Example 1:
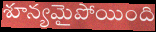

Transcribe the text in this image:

శూన్యమైపోయింది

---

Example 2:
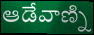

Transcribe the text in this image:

ఆడేవాణ్ని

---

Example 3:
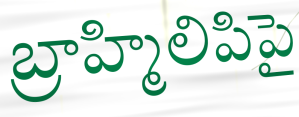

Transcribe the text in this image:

బ్రాహ్మిలిపిపై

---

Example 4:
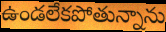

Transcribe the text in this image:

ఉండలేకపోతున్నాను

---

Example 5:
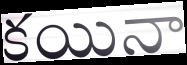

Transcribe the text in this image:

కయినా